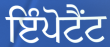
ਇੰਪੋਟੈਂਟ